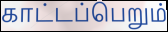
காட்டப்பெறும்